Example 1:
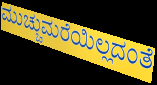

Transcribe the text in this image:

ಮುಚ್ಚುಮರೆಯಿಲ್ಲದಂತೆ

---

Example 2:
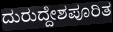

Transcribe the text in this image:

ದುರುದ್ದೇಶಪೂರಿತ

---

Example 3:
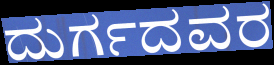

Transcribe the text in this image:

ದುರ್ಗದವರ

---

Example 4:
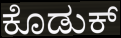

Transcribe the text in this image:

ಕೊಡುಕ್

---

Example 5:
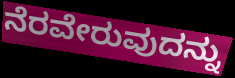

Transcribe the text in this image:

ನೆರವೇರುವುದನ್ನು